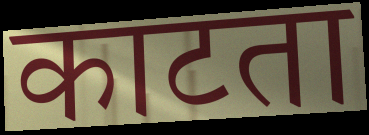
काटता